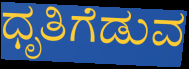
ಧೃತಿಗೆಡುವ